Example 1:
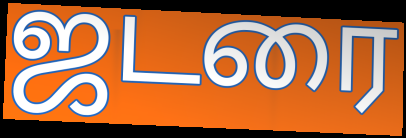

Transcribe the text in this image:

ஜடரை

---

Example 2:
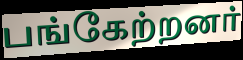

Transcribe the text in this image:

பங்கேற்றனர்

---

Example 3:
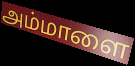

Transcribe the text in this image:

அம்மாளை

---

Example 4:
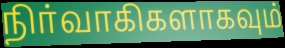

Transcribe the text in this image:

நிர்வாகிகளாகவும்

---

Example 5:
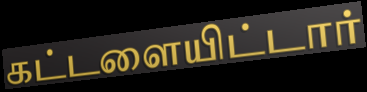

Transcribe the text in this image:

கட்டளையிட்டார்